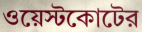
ওয়েস্টকোটের